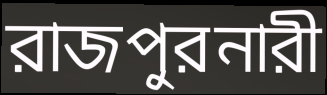
রাজপুরনারী